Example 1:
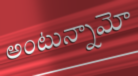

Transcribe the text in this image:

అంటున్నామో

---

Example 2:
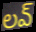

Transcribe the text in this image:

లవ్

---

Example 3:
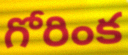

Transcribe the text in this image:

గోరింక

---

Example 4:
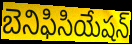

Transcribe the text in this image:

బెనిఫిసియేషన్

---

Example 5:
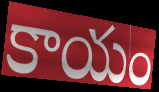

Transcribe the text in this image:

కాయం